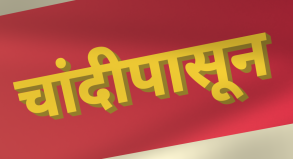
चांदीपासून